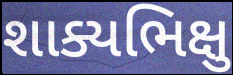
શાક્યભિક્ષુ